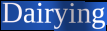
Dairying